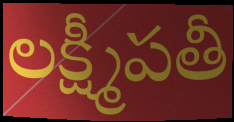
లక్ష్మీపతీ